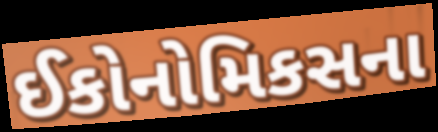
ઈકોનોમિકસના